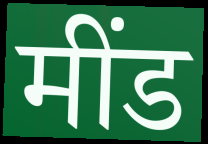
मींड